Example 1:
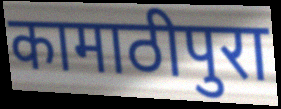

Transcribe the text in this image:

कामाठीपुरा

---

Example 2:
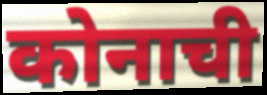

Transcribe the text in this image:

कोनाची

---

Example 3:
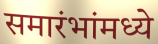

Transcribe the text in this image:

समारंभांमध्ये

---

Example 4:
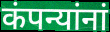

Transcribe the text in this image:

कंपन्यांनां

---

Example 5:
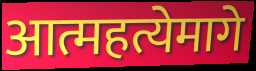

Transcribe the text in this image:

आत्महत्येमागे